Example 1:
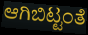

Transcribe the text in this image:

ಆಗಿಬಿಟ್ಟಂತೆ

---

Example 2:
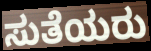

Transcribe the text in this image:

ಸುತೆಯರು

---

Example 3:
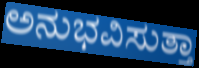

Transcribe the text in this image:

ಅನುಭವಿಸುತ್ತಾ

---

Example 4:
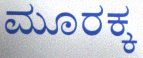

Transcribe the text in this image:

ಮೂರಕ್ಕ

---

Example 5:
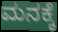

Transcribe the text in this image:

ಮನಕ್ಕೆ